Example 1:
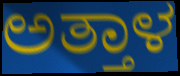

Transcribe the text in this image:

ಅತ್ತಾಳ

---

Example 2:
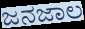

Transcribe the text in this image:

ಜನಜಾಲ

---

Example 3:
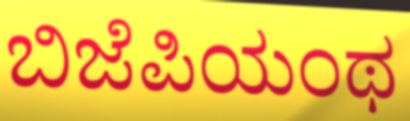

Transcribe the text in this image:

ಬಿಜೆಪಿಯಂಥ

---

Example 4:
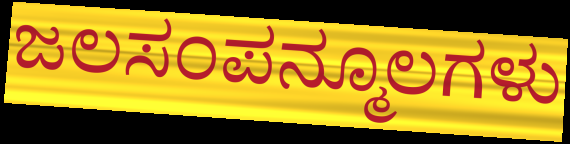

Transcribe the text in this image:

ಜಲಸಂಪನ್ಮೂಲಗಳು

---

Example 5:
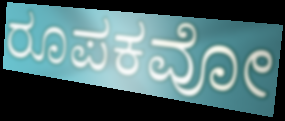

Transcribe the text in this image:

ರೂಪಕವೋ